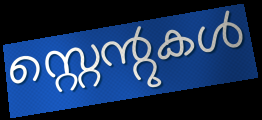
സ്റ്റെന്റുകൾ